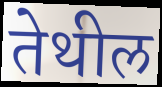
तेथील